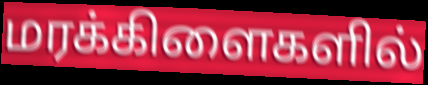
மரக்கிளைகளில்